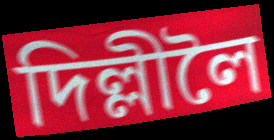
দিল্লীলৈ